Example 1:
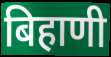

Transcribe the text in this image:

बिहाणी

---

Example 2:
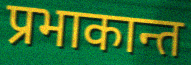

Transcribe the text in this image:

प्रभाकान्त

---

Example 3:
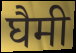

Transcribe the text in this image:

घैमी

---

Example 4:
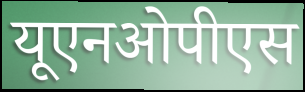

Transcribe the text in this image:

यूएनओपीएस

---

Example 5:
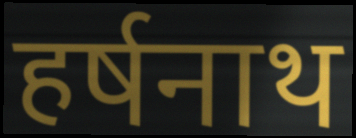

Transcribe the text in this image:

हर्षनाथ